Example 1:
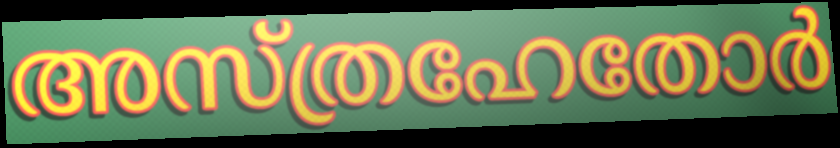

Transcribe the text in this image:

അസ്ത്രഹേതോർ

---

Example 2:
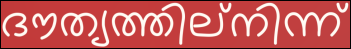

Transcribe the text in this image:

ദൗത്യത്തില്നിന്ന്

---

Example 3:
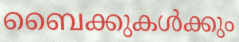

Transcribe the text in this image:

ബൈക്കുകൾക്കും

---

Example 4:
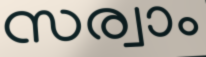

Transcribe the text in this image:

സര്വാം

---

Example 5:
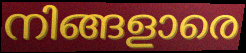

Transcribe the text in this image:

നിങ്ങളാരെ